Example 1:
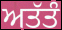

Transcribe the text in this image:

ਅਤੱਤੰ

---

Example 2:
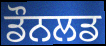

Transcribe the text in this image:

ਡੌਨਲਡ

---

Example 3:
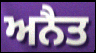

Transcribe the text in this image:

ਅਨੈਤ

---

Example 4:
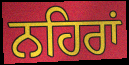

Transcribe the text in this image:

ਨਹਿਰਾਂ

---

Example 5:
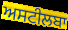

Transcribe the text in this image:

ਅਸਟੀਲਬਾ